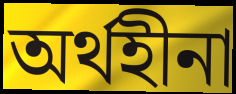
অর্থহীনা